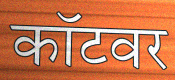
कॉटवर